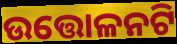
ଉତ୍ତୋଳନଟି